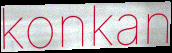
konkan